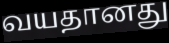
வயதானது